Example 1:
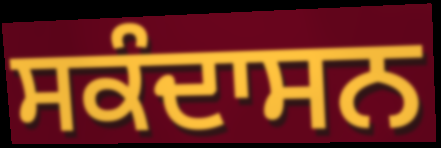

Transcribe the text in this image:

ਸਕੰਦਾਸਨ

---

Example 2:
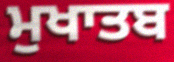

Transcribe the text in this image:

ਮੁਖਾਤਬ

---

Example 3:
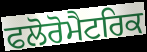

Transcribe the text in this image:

ਫਲੋਰੋਮੈਟਰਿਕ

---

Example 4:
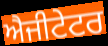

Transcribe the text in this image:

ਐਜੀਟੇਟਰ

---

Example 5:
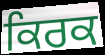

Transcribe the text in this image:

ਕਿਰਕ